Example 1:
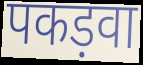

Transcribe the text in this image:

पकड़वा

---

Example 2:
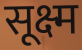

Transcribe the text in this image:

सूक्ष्‍म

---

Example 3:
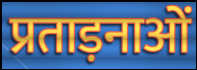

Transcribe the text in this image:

प्रताड़नाओं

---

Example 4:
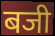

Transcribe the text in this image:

बजी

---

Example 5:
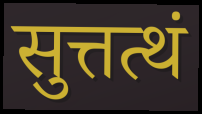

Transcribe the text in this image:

सुत्तत्थं